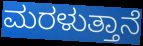
ಮರಳುತ್ತಾನೆ